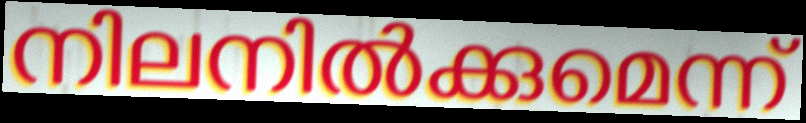
നിലനിൽക്കുമെന്ന്